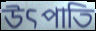
উৎপাতি